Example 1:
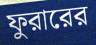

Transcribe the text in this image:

ফুরারের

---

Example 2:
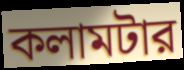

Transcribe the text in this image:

কলামটার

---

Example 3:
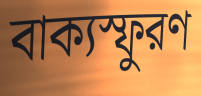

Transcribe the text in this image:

বাক্যস্ফুরণ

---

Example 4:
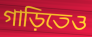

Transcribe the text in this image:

গাড়িতেও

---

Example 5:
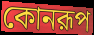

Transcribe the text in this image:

কোনরূপ